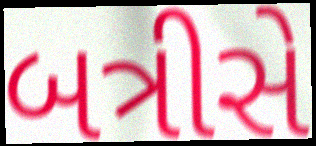
બત્રીસે